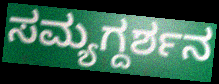
ಸಮ್ಯಗ್ದರ್ಶನ